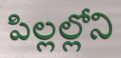
పిల్లల్లోని